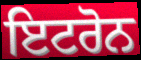
ਇਟਰੋਨ